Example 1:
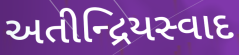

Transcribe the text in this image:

અતીન્દ્રિયસ્વાદ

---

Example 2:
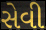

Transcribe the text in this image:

સેવી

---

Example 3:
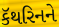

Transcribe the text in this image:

કૅથરિનને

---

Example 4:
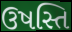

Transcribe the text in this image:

ઉષસ્તિ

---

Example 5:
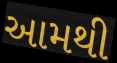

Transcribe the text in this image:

આમથી